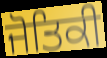
ਜੋਤਿਕੀ